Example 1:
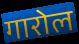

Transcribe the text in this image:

गारोल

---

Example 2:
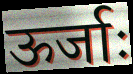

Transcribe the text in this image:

ऊर्जाः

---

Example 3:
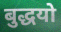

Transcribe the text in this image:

बुद्धयो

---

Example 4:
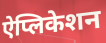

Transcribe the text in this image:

ऐप्लिकेशन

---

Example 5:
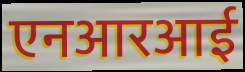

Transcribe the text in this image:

एनआरआई